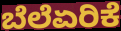
ಬೆಲೆಏರಿಕೆ